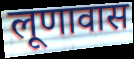
लूणावास